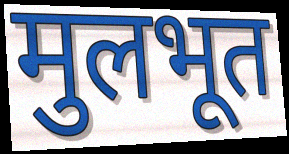
मुलभूत